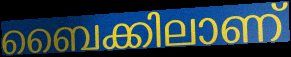
ബൈക്കിലാണ്